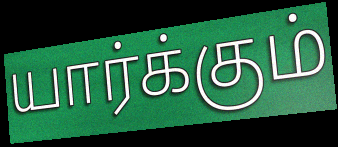
யார்க்கும்